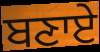
ਬਣਾਏ